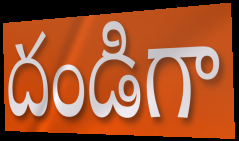
దండిగా